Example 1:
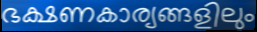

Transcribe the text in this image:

ഭക്ഷണകാര്യങ്ങളിലും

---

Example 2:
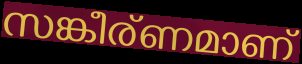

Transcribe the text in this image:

സങ്കീര്ണമാണ്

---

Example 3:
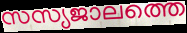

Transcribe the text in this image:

സസ്യജാലത്തെ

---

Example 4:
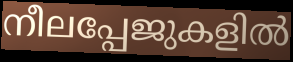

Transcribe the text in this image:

നീലപ്പേജുകളിൽ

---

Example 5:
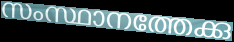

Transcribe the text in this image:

സംസ്ഥാനത്തേക്കു